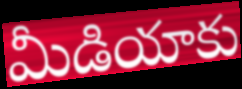
మీడియాకు